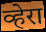
व्हेरा